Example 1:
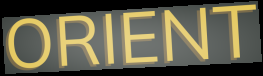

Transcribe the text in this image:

ORIENT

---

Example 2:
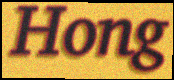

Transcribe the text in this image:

Hong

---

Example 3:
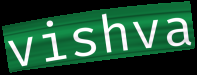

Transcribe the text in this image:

vishva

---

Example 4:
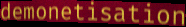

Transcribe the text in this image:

demonetisation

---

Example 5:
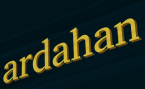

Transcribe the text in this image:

ardahan